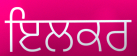
ਇਲਕਰ